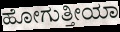
ಹೋಗುತ್ತೀಯಾ